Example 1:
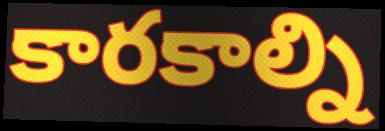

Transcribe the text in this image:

కారకాల్ని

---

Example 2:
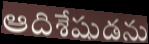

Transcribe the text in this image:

ఆదిశేషుడను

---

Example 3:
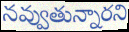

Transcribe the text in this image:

నవ్వుతున్నారని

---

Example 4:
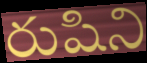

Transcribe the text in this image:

రుషిని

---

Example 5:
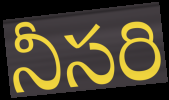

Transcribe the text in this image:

నీసరి